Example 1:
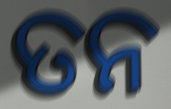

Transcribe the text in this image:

ତନ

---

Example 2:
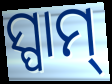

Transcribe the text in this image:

ସ୍ପାମ୍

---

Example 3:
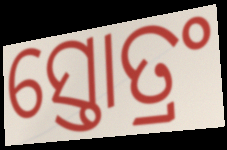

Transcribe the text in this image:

ସ୍ତୋତ୍ରଂ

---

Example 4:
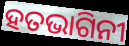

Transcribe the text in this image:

ହତଭାଗିନୀ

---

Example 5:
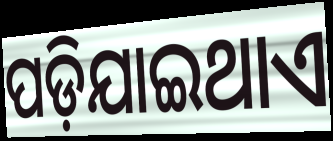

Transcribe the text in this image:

ପଡ଼ିଯାଇଥାଏ